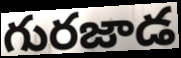
గురజాడ